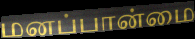
மனப்பான்மை